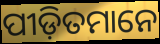
ପୀଡ଼ିତମାନେ